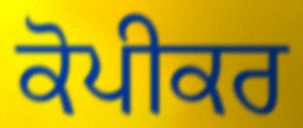
ਕੋਪੀਕਰ